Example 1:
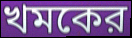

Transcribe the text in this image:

খমকের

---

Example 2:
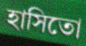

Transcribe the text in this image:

হাসিতো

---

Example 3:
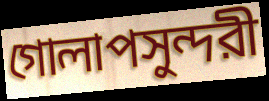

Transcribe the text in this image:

গোলাপসুন্দরী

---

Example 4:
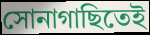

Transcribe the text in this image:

সোনাগাছিতেই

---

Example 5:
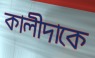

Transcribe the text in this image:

কালীদাকে